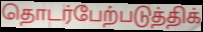
தொடர்பேற்படுத்திக்